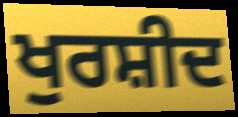
ਖੁਰਸ਼ੀਦ